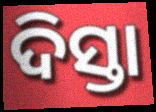
ଦିସ୍ତା